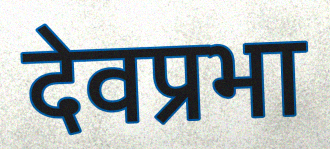
देवप्रभा